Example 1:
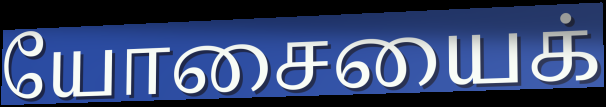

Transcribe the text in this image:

யோசையைக்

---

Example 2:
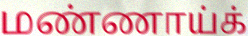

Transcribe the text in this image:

மண்ணாய்க்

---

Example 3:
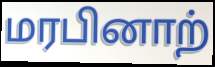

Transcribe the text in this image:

மரபினாற்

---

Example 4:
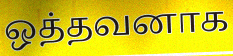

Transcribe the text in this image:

ஒத்தவனாக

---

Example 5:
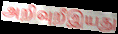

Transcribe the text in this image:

அறிவுறீஇயது